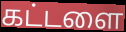
கட்டளை